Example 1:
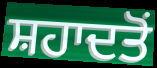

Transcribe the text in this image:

ਸ਼ਹਾਦਤੋਂ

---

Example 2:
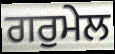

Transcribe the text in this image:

ਗਰੁਮੇਲ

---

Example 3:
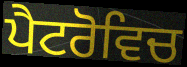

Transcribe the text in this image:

ਪੈਟਰੋਵਿਚ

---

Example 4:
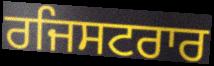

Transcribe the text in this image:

ਰਜਿਸਟਰਾਰ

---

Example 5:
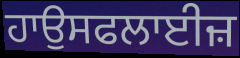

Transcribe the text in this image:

ਹਾਉਸਫਲਾਈਜ਼